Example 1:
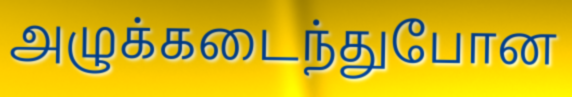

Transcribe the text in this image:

அழுக்கடைந்துபோன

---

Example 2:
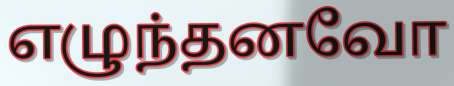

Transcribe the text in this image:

எழுந்தனவோ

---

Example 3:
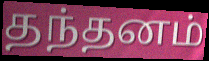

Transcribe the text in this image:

தந்தனம்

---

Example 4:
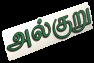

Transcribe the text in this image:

அல்குறு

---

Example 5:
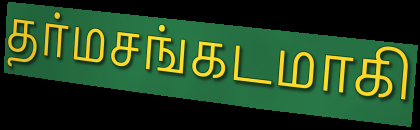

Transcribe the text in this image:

தர்மசங்கடமாகி